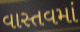
વાસ્તવમાં